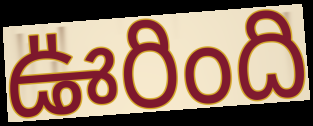
ఊరింది